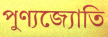
পুণ্যজ্যোতি